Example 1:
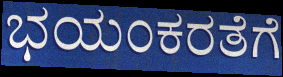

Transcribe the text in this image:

ಭಯಂಕರತೆಗೆ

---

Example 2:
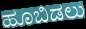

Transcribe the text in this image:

ಹೂಬಿಡಲು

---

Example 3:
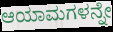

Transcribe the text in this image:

ಆಯಾಮಗಳನ್ನೇ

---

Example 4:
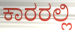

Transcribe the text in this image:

ಕಾರರಲ್ಲಿ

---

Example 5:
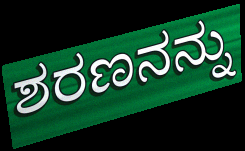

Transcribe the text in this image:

ಶರಣನನ್ನು